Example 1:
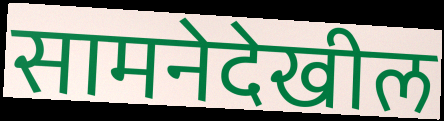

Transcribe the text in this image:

सामनेदेखील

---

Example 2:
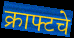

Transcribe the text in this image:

क्राफ्टचे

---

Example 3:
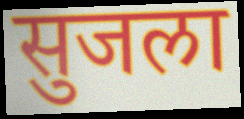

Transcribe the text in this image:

सुजला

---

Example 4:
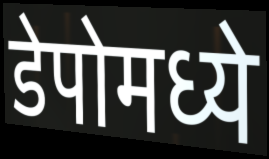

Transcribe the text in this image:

डेपोमध्ये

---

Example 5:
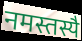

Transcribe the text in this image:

नमस्तस्यै